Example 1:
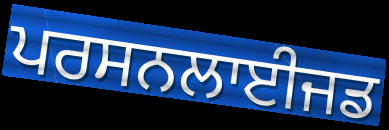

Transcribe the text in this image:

ਪਰਸਨਲਾਈਜਡ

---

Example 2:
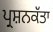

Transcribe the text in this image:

ਪ੍ਰਸ਼ਨਕੱਤਾ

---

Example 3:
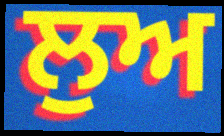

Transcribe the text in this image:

ਲੁਅ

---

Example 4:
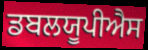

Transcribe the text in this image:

ਡਬਲਯੂਪੀਐਸ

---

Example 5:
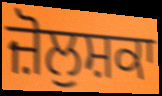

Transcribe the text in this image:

ਜ਼ੋਲੁਸ਼ਕਾ